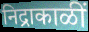
निद्राकाळीं